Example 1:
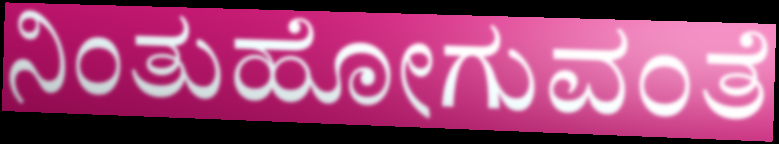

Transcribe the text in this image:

ನಿಂತುಹೋಗುವಂತೆ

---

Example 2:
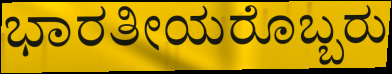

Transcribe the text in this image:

ಭಾರತೀಯರೊಬ್ಬರು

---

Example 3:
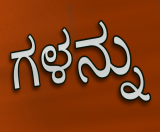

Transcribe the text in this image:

ಗಳನ್ನು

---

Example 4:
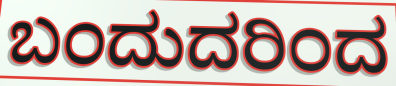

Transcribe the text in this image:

ಬಂದುದರಿಂದ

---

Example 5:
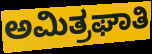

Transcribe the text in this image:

ಅಮಿತ್ರಘಾತಿ